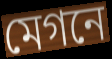
মেগনে